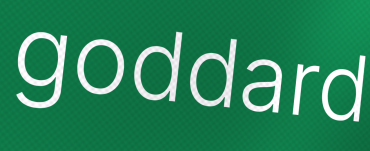
goddard